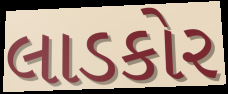
લાડકોર